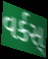
વર્કસ્